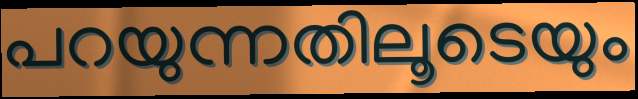
പറയുന്നതിലൂടെയും